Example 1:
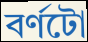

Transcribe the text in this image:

বৰ্ণটো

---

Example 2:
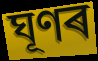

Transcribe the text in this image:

ঘূণৰ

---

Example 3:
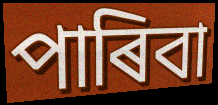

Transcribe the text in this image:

পাৰিবা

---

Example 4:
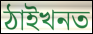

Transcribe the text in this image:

ঠাইখনত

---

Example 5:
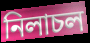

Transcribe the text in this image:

নিলাচল